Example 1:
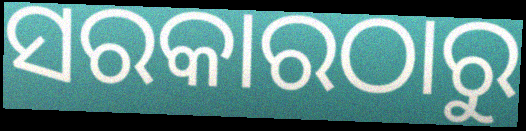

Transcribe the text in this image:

ସରକାରଠାରୁ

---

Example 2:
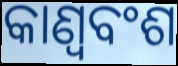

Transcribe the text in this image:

କାଣ୍ୱବଂଶ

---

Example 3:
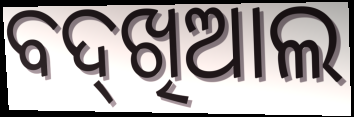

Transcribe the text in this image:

ବଦ୍‌ଖିଆଲ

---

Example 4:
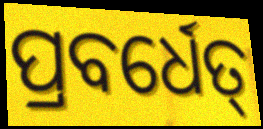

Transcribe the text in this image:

ପ୍ରବର୍ଧେତ୍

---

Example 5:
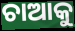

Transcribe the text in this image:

ଚାଆକୁ